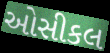
ઓસીકલ